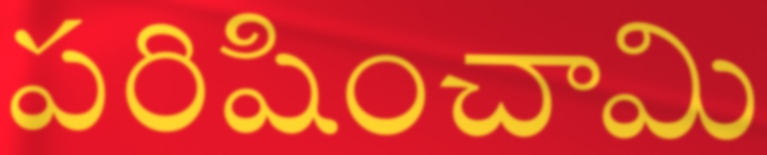
పరిషించామి